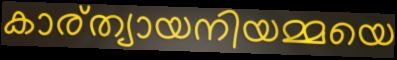
കാര്ത്യായനിയമ്മയെ